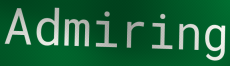
Admiring